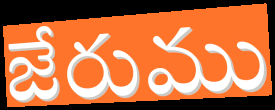
జేరుము